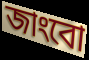
জাংবো